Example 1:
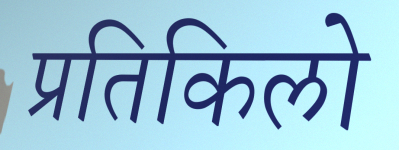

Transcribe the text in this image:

प्रतिकिलो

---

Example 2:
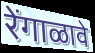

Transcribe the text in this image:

रेंगाळावे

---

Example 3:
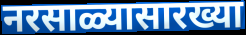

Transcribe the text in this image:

नरसाळ्यासारख्या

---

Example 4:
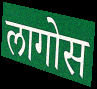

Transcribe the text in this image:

लागोस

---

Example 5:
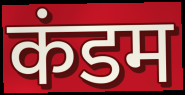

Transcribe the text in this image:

कंडम